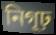
নিগূঢ়